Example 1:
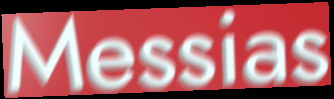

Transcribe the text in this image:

Messias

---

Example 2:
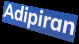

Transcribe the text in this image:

Adipiran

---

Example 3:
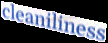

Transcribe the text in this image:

cleaniliness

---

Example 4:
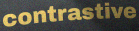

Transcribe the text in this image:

contrastive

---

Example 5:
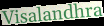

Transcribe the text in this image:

Visalandhra